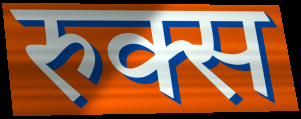
रुक्स